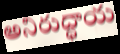
అనిరుద్ధాయ